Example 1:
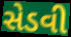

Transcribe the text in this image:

સેડવી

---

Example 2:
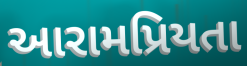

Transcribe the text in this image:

આરામપ્રિયતા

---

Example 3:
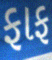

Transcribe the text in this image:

ફાફ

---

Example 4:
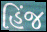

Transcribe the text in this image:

હિંજ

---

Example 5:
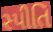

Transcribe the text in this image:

સ્પીતિ